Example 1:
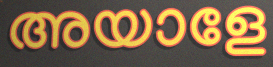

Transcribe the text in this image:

അയാളേ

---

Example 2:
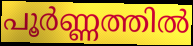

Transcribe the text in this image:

പൂർണ്ണത്തിൽ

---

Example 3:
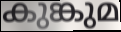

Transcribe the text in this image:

കുങ്കുമ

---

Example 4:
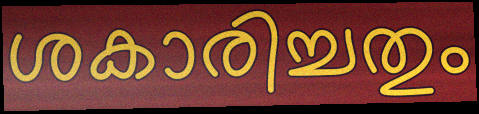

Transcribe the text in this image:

ശകാരിച്ചതും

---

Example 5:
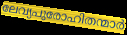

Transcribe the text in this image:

ലേവ്യപുരോഹിതന്മാർ